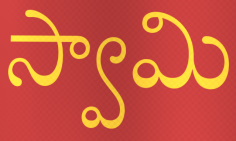
స్వామి